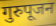
गुरुपूजन